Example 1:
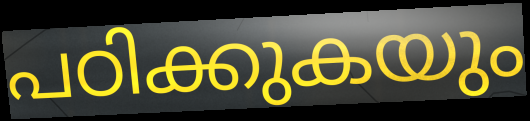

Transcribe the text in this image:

പഠിക്കുകയും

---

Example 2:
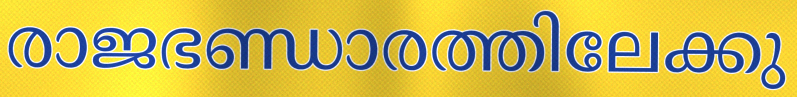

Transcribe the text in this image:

രാജഭണ്ഡാരത്തിലേക്കു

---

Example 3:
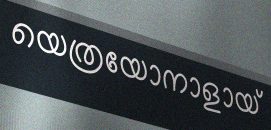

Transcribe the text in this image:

യെത്രയോനാളായ്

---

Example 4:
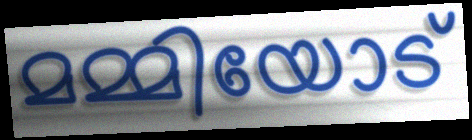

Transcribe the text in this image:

മമ്മിയോട്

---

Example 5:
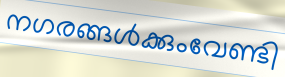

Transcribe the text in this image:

നഗരങ്ങൾക്കുംവേണ്ടി